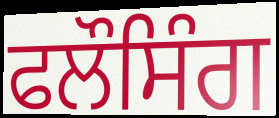
ਫਲੌਸਿੰਗ